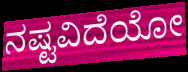
ನಷ್ಟವಿದೆಯೋ